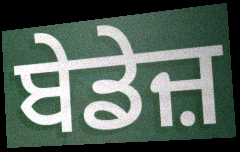
ਬੇਡੇਜ਼